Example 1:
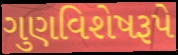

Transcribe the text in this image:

ગુણવિશેષરૂપે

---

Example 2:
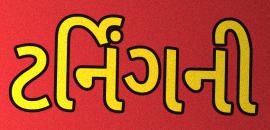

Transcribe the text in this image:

ટર્નિંગની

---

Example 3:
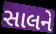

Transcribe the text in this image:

સાલને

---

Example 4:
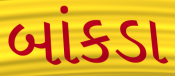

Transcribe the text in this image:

બાંકડા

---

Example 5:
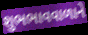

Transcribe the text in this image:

શુભભાવવાળાને